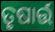
ତୃଷାର୍ତ୍ତ